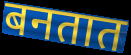
बनतात